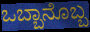
ಒಬ್ಬಾನೊಬ್ಬ